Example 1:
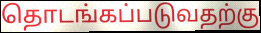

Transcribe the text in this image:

தொடங்கப்படுவதற்கு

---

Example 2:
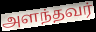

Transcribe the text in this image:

அளந்தவர்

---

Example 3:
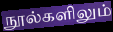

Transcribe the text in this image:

நூல்களிலும்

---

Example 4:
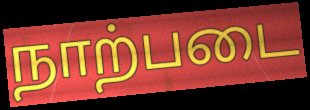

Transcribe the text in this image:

நாற்படை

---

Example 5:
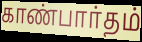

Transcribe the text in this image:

காண்பார்தம்